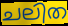
ചലിത